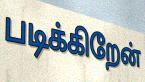
படிக்கிறேன்